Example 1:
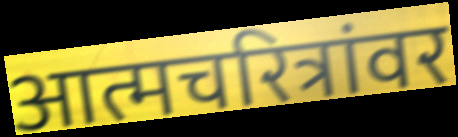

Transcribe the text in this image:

आत्मचरित्रांवर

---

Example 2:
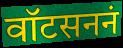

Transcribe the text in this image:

वॉटसननं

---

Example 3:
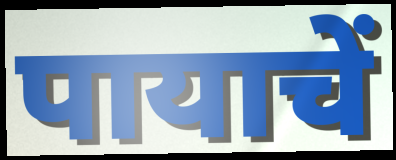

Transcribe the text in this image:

पायाचें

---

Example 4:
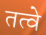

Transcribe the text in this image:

तत्वे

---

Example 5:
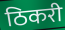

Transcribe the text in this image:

ठिकरी